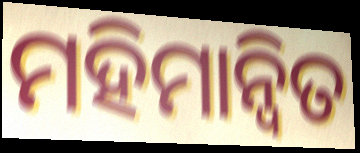
ମହିମାନ୍ୱିତ